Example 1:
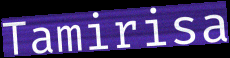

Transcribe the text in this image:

Tamirisa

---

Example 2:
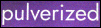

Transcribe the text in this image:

pulverized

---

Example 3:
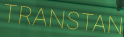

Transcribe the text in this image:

TRANSTAN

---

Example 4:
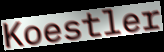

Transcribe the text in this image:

Koestler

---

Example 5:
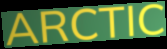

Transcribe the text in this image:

ARCTIC